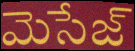
మెసేజ్